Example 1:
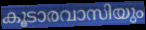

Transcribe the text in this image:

കൂടാരവാസിയും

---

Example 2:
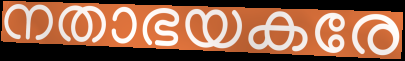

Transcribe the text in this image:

നതാഭയകരേ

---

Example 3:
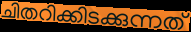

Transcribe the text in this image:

ചിതറിക്കിടക്കുന്നത്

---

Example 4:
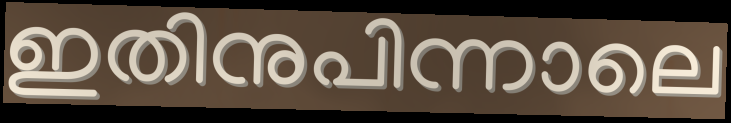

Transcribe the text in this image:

ഇതിനുപിന്നാലെ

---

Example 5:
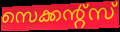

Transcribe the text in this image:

സെക്കന്റ്സ്